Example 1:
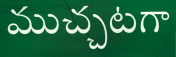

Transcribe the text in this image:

ముచ్చటగా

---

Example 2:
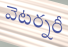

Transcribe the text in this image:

వెటర్నరీ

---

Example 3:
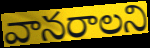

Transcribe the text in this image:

వానరాలని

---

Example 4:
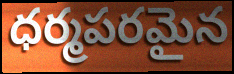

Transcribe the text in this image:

ధర్మపరమైన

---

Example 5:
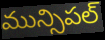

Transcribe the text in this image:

మున్సిపల్